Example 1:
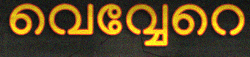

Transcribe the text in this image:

വെവ്വേറെ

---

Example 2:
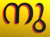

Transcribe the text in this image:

നു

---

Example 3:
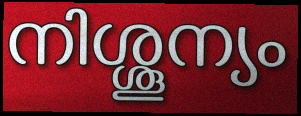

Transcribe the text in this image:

നിശ്ശൂന്യം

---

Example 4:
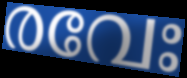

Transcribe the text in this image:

രവേഃ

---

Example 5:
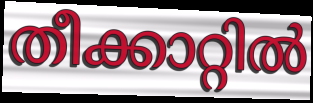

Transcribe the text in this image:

തീക്കാറ്റിൽ